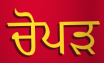
ਚੋਪੜ